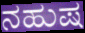
ನಹುಷ